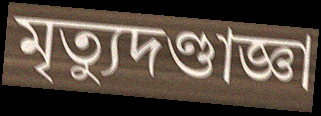
মৃত্যুদণ্ডাজ্ঞা